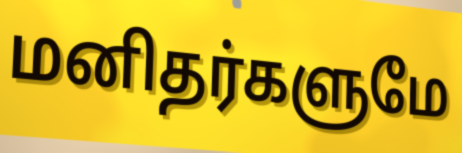
மனிதர்களுமே